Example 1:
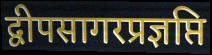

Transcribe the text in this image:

द्वीपसागरप्रज्ञप्ति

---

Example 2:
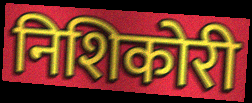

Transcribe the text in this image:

निशिकोरी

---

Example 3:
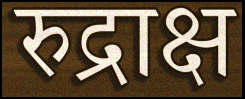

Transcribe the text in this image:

रुद्राक्ष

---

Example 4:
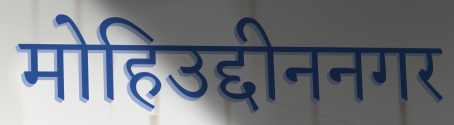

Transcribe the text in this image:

मोहिउद्दीननगर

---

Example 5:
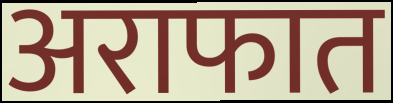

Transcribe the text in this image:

अराफात